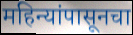
महिन्यांपासूनचा